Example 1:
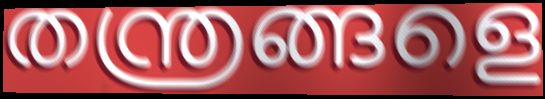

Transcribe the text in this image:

തന്ത്രങ്ങളെ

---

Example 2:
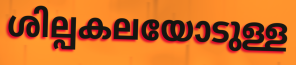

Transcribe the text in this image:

ശില്പകലയോടുള്ള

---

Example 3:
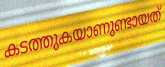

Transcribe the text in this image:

കടത്തുകയാണുണ്ടായത്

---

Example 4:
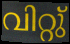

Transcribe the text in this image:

വിറ്റു്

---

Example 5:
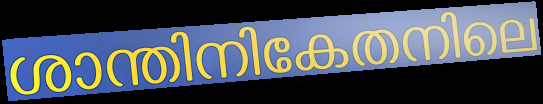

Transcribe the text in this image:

ശാന്തിനികേതനിലെ